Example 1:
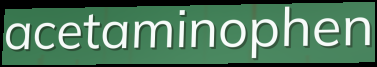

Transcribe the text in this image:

acetaminophen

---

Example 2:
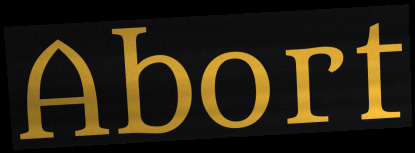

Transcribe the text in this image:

Abort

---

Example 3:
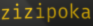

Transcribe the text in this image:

zizipoka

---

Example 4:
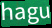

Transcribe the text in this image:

hagu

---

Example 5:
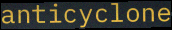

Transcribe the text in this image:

anticyclone